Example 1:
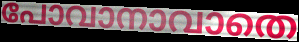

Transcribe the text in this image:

പോവാനാവാതെ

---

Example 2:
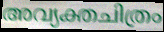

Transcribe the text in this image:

അവ്യക്തചിത്രം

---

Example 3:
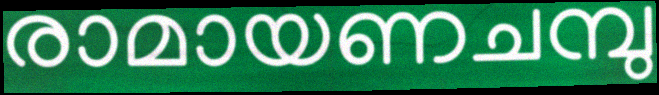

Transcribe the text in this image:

രാമായണചമ്പു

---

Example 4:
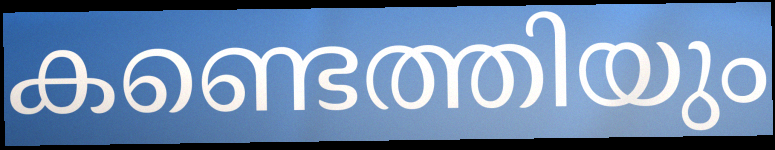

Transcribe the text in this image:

കണ്ടെത്തിയും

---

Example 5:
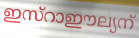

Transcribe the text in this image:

ഇസ്റാഈല്യന്